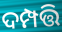
ଦମ୍ପତ୍ତି